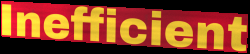
Inefficient